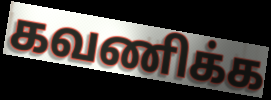
கவணிக்க